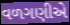
વળગણીએ